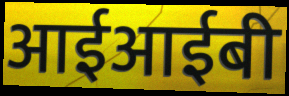
आईआईबी